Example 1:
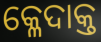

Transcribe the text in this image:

କ୍ଳେଦାକ୍ତ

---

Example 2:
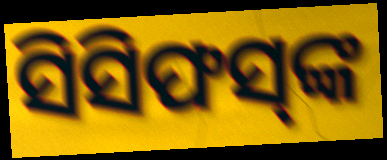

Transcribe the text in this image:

ସିସିଫସ୍‌ଙ୍କ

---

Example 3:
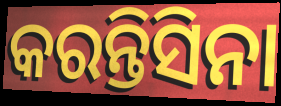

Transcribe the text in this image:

କରନ୍ତିସିନା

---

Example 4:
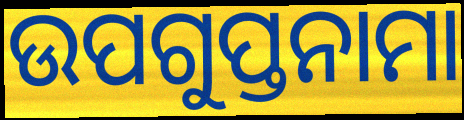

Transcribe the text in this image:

ଉପଗୁପ୍ତନାମା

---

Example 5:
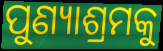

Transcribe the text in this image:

ପୁଣ୍ୟାଶ୍ରମକୁ